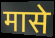
मासे